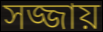
সজ্জায়